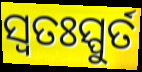
ସ୍ୱତଃସ୍ପୁର୍ତ